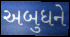
અબુધને